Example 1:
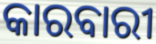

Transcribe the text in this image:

କାରବାରୀ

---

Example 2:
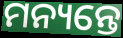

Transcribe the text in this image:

ମନ୍ୟନ୍ତେ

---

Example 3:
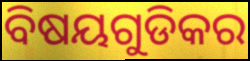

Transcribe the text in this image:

ବିଷୟଗୁଡିକର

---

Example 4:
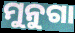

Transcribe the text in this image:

ମୁନୁଗା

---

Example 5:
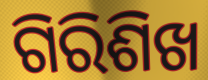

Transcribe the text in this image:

ଗିରିଶିଖ